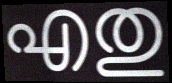
എതു